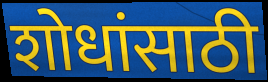
शोधांसाठी